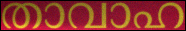
താവാഹ